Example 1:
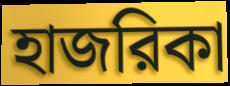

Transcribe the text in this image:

হাজরিকা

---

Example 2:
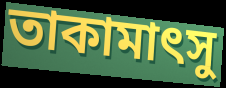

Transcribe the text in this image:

তাকামাৎসু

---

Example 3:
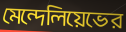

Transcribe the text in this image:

মেন্দেলিয়েভের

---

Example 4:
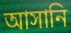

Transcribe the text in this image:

আসানি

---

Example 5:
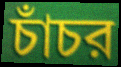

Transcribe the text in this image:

চাঁচর